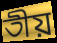
তীয়